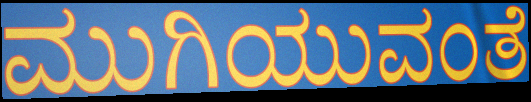
ಮುಗಿಯುವಂತೆ